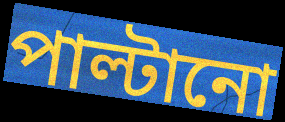
পাল্টানো